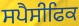
ਸਪੈਸੀਫਿਕ